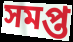
সমপ্ত